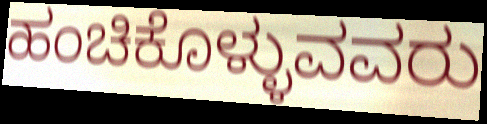
ಹಂಚಿಕೊಳ್ಳುವವರು